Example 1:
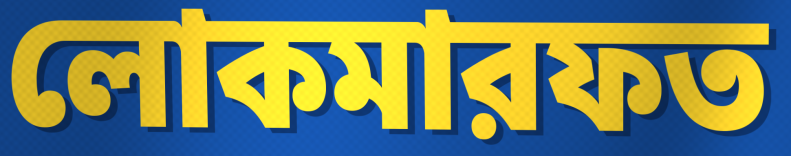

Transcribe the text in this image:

লোকমারফত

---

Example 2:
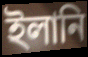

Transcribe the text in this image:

ইলানি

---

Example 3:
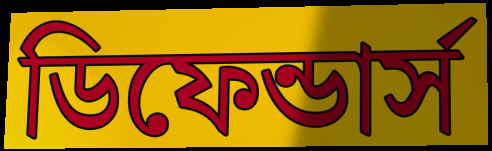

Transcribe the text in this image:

ডিফেন্ডার্স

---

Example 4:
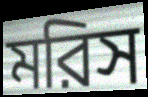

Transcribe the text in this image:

মরিস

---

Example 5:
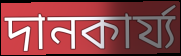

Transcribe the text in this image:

দানকার্য্য